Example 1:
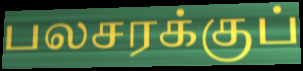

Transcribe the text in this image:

பலசரக்குப்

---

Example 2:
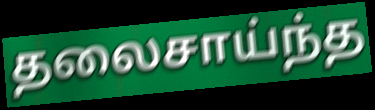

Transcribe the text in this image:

தலைசாய்ந்த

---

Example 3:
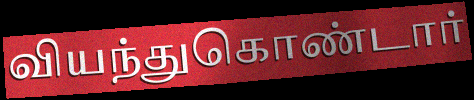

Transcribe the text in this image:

வியந்துகொண்டார்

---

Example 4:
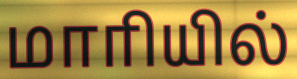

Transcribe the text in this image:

மாரியில்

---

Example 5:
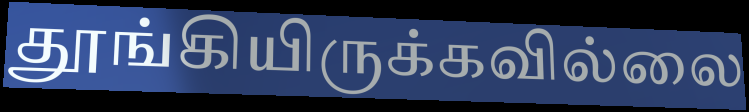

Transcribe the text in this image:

தூங்கியிருக்கவில்லை